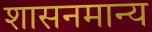
शासनमान्य